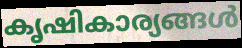
കൃഷികാര്യങ്ങൾ